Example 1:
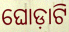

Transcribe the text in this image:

ଘୋଡ଼ାଟି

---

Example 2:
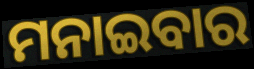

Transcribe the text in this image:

ମନାଇବାର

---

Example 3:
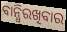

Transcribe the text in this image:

ବାନ୍ଧିରଖିବାର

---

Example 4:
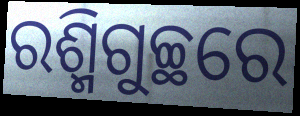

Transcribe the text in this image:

ରଶ୍ମିଗୁଚ୍ଛରେ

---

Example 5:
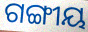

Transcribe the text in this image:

ଗଙ୍ଗୀୟ